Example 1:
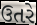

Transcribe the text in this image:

ઉતરે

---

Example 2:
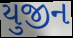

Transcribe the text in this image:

યુજીન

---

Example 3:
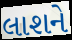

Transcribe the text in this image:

લાશને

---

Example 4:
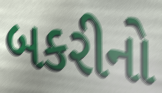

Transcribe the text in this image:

બકરીનો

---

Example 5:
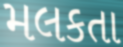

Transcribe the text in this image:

મલકતા